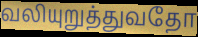
வலியுறுத்துவதோ